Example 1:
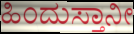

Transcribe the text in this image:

ಹಿಂದುಸ್ತಾನೀ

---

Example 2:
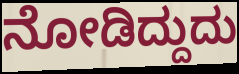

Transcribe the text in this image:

ನೋಡಿದ್ದುದು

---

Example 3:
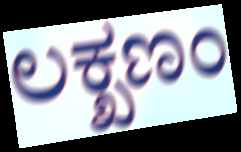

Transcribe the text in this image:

ಲಕ್ಖಣಂ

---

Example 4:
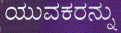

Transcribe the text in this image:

ಯುವಕರನ್ನು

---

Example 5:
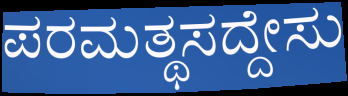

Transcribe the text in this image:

ಪರಮತ್ಥಸದ್ದೇಸು